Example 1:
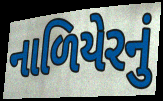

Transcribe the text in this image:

નાળિયેરનું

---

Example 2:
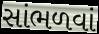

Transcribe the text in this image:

સાંભળવાં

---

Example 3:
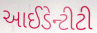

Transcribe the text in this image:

આઈડેન્ટીટી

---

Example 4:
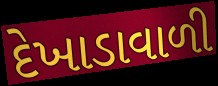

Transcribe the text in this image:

દેખાડાવાળી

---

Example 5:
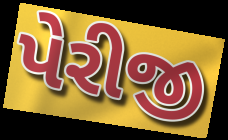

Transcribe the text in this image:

પેરીજી